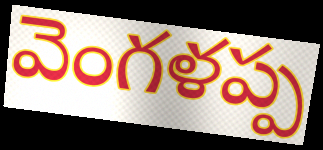
వెంగళప్ప